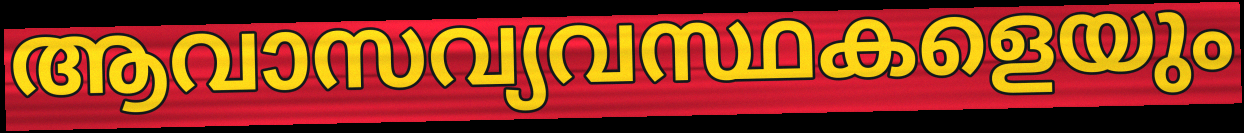
ആവാസവ്യവസ്ഥകളെയും